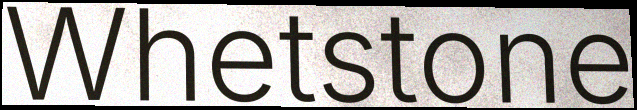
Whetstone